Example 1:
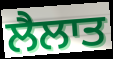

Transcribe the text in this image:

ਲੈਲਾਤ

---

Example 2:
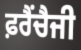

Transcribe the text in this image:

ਫ਼ਰੈਂਚੈਜੀ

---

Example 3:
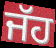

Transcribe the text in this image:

ਜੱਹ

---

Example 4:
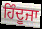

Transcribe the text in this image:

ਹਿੰਦੂਜਾ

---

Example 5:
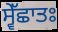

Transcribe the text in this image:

ਸ੍ਵੇੱਛਾਤਃ